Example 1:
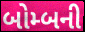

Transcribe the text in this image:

બોમ્બની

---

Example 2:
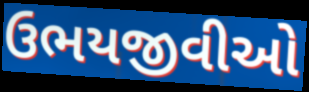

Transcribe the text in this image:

ઉભયજીવીઓ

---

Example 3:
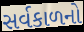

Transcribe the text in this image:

સર્વકાળનો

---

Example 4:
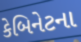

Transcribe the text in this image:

કેબિનેટના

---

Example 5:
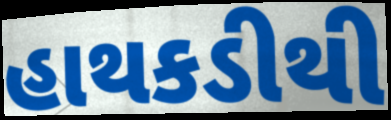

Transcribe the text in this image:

હાથકડીથી